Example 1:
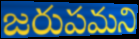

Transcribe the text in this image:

జరుపమని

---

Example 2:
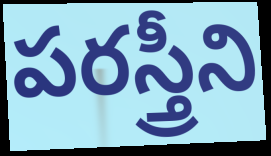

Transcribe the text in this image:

పరస్త్రీని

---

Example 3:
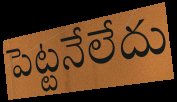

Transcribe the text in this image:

పెట్టనేలేదు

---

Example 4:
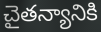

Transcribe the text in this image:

చైతన్యానికి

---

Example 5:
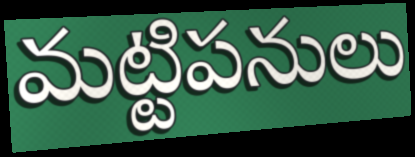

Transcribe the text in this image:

మట్టిపనులు